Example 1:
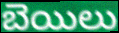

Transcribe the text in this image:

బెయిలు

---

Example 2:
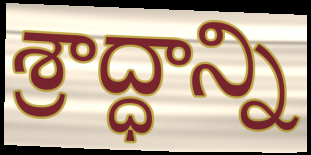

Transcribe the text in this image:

శ్రాద్ధాన్ని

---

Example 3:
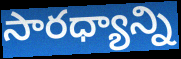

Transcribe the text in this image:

సారధ్యాన్ని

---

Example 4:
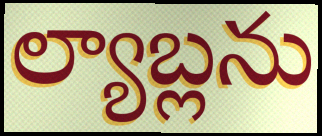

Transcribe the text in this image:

ల్యాబ్లను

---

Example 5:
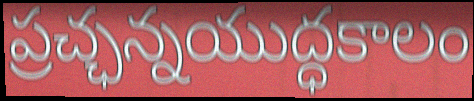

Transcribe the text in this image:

ప్రచ్ఛన్నయుద్ధకాలం